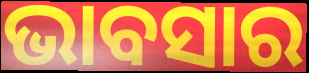
ଭାବସାର